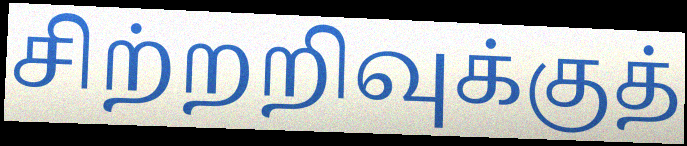
சிற்றறிவுக்குத்